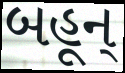
બહૂન્